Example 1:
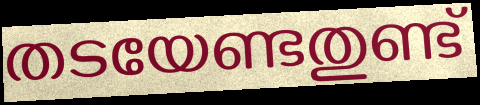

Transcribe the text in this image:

തടയേണ്ടതുണ്ട്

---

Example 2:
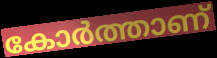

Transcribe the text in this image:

കോർത്താണ്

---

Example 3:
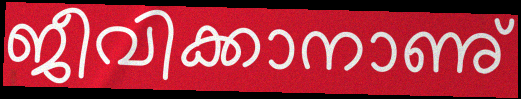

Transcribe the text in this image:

ജീവിക്കാനാണു്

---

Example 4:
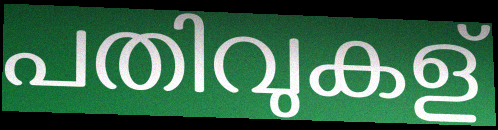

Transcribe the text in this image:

പതിവുകള്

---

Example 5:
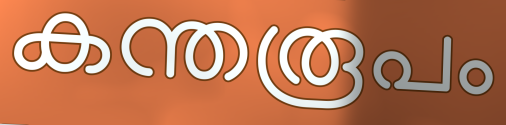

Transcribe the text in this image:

കന്തരൂപം